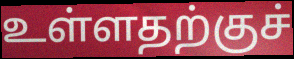
உள்ளதற்குச்